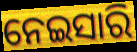
ନେଇସାରି